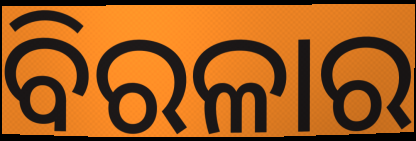
ବିରଳାର